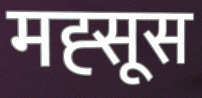
मह्सूस